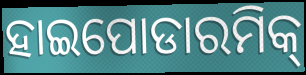
ହାଇପୋଡାରମିକ୍